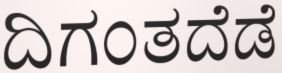
ದಿಗಂತದೆಡೆ